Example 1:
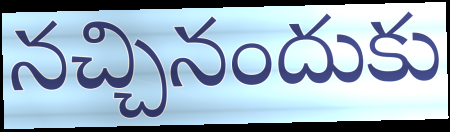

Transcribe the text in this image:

నచ్చినందుకు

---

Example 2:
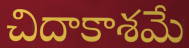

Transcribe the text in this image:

చిదాకాశమే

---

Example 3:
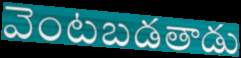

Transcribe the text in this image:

వెంటబడతాడు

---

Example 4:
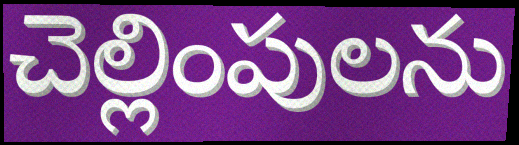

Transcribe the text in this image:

చెల్లింపులను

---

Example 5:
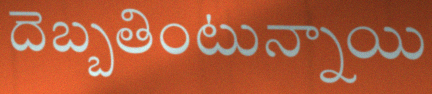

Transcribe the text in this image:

దెబ్బతింటున్నాయి